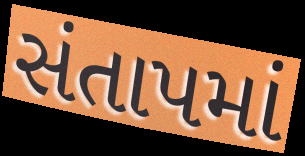
સંતાપમાં